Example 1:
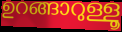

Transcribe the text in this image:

ഉറങ്ങാറുള്ളൂ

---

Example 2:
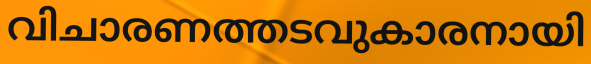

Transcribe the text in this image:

വിചാരണത്തടവുകാരനായി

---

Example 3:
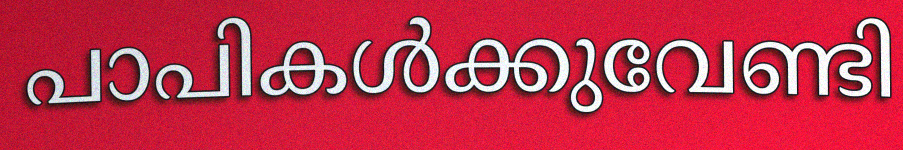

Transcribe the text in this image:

പാപികൾക്കുവേണ്ടി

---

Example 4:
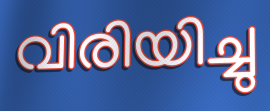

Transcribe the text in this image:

വിരിയിച്ചു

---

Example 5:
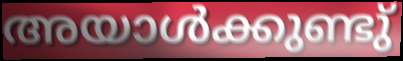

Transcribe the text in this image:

അയാൾക്കുണ്ടു്